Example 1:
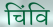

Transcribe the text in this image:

चिंवि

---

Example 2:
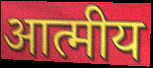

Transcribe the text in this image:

आत्मीय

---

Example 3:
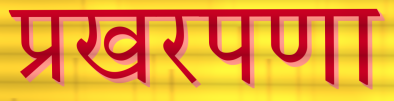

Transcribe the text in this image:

प्रखरपणा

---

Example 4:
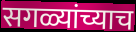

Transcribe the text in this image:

सगळ्यांच्याच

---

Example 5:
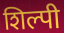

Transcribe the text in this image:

शिल्पी